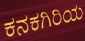
ಕನಕಗಿರಿಯ